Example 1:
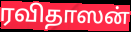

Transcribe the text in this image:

ரவிதாஸன்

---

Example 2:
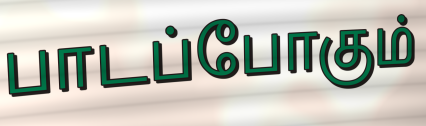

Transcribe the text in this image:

பாடப்போகும்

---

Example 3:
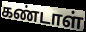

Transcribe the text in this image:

கண்டாள்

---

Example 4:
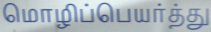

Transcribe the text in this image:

மொழிப்பெயர்த்து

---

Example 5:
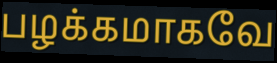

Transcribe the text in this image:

பழக்கமாகவே